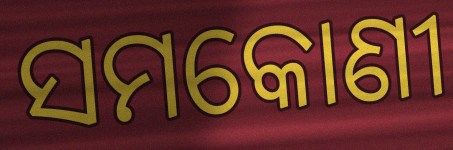
ସମକୋଣୀ